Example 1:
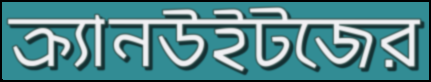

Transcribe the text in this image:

ক্র্যানউইটজের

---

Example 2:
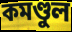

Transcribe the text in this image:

কমণ্ডুল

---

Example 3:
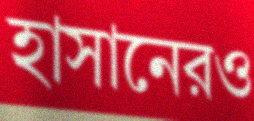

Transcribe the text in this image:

হাসানেরও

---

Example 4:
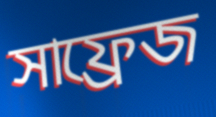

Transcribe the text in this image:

সাফ্রেজ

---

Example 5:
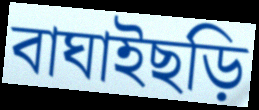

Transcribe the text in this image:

বাঘাইছড়ি